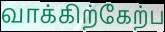
வாக்கிற்கேற்ப